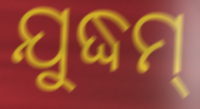
ଯୁଦ୍ଧମ୍